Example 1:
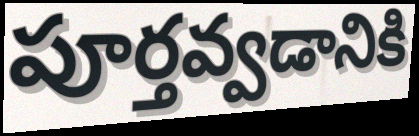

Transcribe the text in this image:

పూర్తవ్వడానికి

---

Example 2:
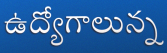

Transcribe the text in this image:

ఉద్యోగాలున్న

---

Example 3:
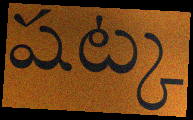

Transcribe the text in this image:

షట్క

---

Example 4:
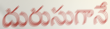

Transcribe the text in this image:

దురుసుగానే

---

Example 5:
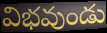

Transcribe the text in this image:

విభవుండు